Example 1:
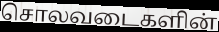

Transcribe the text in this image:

சொலவடைகளின்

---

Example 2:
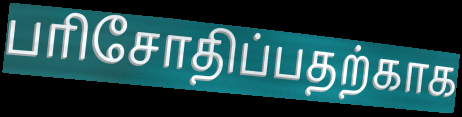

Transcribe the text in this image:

பரிசோதிப்பதற்காக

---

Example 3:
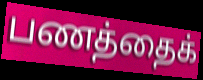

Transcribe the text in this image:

பணத்தைக்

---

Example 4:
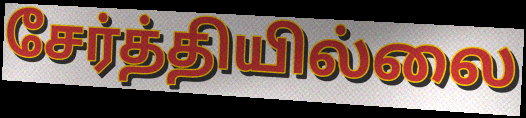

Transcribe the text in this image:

சேர்த்தியில்லை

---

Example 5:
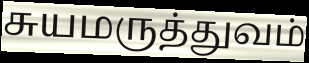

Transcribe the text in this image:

சுயமருத்துவம்